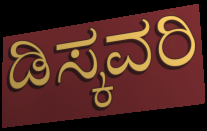
ಡಿಸ್ಕವರಿ